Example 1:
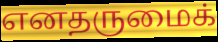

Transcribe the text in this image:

எனதருமைக்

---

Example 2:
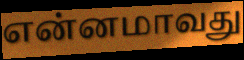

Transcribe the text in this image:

என்னமாவது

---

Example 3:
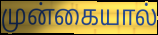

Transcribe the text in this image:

முன்கையால்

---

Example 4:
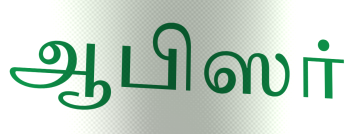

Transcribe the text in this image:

ஆபிஸர்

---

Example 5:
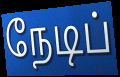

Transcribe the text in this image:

நேடிப்